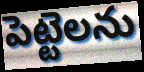
పెట్టెలను